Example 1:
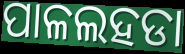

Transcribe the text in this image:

ପାଳଲହଡା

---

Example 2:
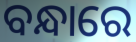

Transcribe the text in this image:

ବନ୍ଧାରେ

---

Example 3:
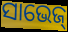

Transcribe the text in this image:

ସାଭେଜ୍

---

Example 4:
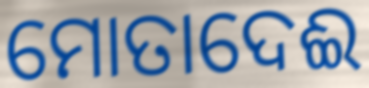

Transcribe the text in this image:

ମୋତାଦେଈ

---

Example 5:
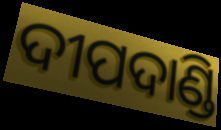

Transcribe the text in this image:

ଦୀପଦାଣ୍ଡି